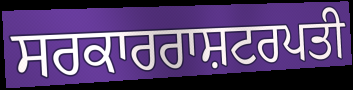
ਸਰਕਾਰਰਾਸ਼ਟਰਪਤੀ